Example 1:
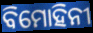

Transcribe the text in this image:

ବିମୋହିନୀ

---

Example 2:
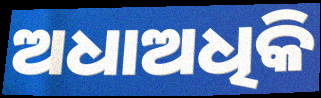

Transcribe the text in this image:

ଅଧାଅଧିକି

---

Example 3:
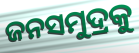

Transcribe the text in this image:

ଜନସମୁଦ୍ରକୁ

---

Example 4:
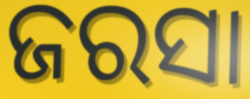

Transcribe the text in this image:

ଜରସା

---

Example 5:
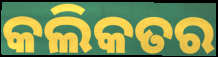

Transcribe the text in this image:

କଲିକତର